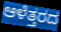
ಆಳೆತ್ತರದ